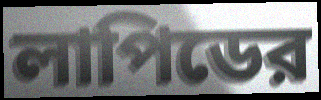
লাপিডের